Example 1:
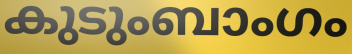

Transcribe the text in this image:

കുടുംബാംഗം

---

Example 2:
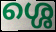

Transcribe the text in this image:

ശ്ശെ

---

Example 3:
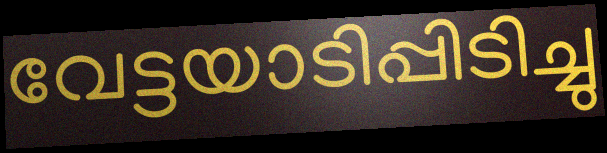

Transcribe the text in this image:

വേട്ടയാടിപ്പിടിച്ചു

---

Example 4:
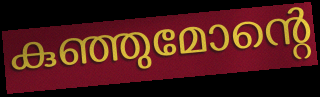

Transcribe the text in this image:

കുഞ്ഞുമോന്റെ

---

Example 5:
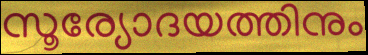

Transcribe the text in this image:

സൂര്യോദയത്തിനും